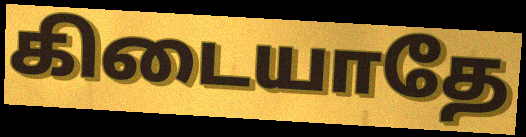
கிடையாதே